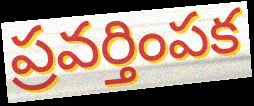
ప్రవర్తింపక